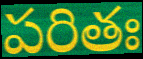
పరితః